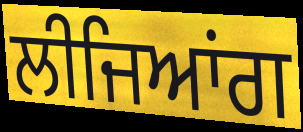
ਲੀਜਿਆਂਗ